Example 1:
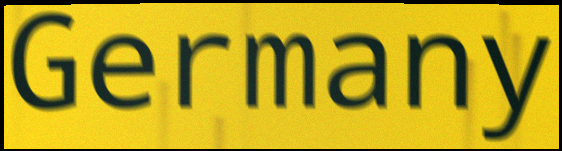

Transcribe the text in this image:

Germany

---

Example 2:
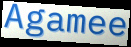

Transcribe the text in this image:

Agamee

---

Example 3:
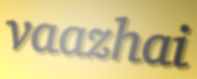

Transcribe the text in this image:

vaazhai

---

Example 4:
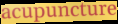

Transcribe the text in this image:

acupuncture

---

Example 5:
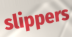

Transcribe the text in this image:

slippers